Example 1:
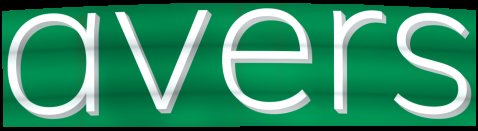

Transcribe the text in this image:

avers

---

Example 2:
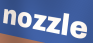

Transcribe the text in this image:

nozzle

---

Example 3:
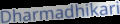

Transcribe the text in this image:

Dharmadhikari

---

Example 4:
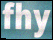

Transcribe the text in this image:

fhy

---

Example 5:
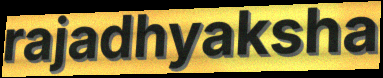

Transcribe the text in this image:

rajadhyaksha